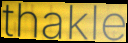
thakle